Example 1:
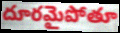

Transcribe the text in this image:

దూరమైపోతూ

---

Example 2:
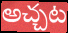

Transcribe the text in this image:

అచ్చట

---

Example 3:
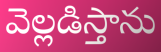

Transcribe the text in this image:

వెల్లడిస్తాను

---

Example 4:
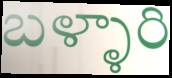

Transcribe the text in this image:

బళ్ళారి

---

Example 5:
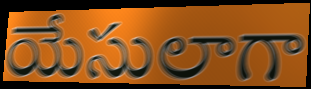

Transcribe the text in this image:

యేసులాగా